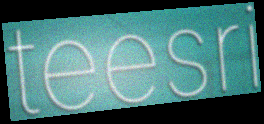
teesri